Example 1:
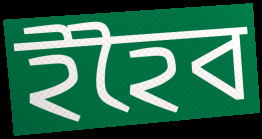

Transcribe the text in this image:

ইহৈব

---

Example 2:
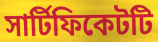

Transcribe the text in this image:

সার্টিফিকেটটি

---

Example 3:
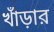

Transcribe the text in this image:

খাঁড়ার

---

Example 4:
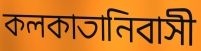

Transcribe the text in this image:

কলকাতানিবাসী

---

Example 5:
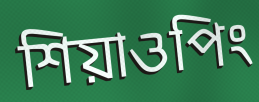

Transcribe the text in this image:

শিয়াওপিং